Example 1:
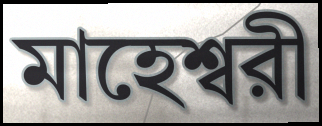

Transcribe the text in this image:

মাহেশ্বরী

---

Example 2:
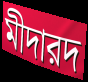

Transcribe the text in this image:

মীদারদ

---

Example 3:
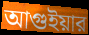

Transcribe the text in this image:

আগুইয়ার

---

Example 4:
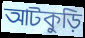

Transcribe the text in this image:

আটকুড়ি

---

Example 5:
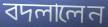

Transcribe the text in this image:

বদলালেন